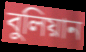
বুলিয়ান